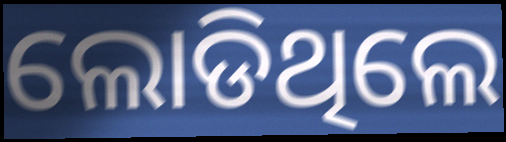
ଲୋଡିଥିଲେ